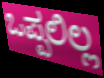
ಒಪ್ಪಲಿಲ್ಲ